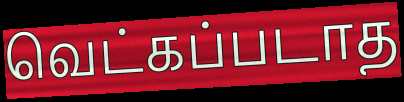
வெட்கப்படாத